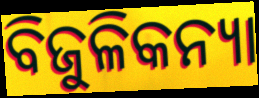
ବିଜୁଳିକନ୍ୟା